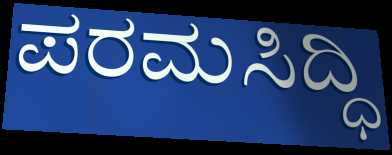
ಪರಮಸಿದ್ಧಿ